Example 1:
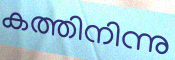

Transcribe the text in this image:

കത്തിനിന്നു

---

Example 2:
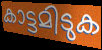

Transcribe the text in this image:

കാട്ടമിടുക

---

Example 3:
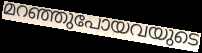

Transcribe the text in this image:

മറഞ്ഞുപോയവയുടെ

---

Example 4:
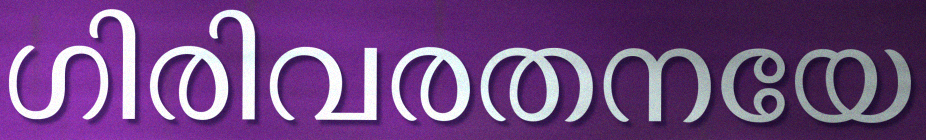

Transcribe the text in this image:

ഗിരിവരതനയേ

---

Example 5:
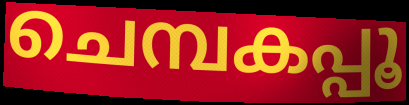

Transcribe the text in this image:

ചെമ്പകപ്പൂ